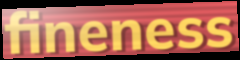
fineness